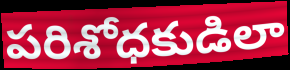
పరిశోధకుడిలా